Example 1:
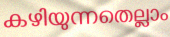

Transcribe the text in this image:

കഴിയുന്നതെല്ലാം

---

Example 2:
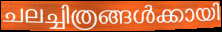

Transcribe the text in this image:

ചലച്ചിത്രങ്ങൾക്കായി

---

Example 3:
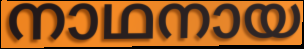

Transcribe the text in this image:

നാഥനായ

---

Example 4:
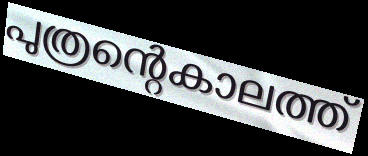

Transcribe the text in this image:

പുത്രന്റെകാലത്ത്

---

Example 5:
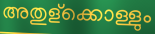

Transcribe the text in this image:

അതുള്ക്കൊള്ളും